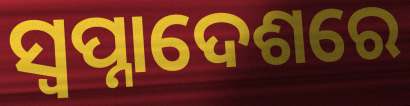
ସ୍ଵପ୍ନାଦେଶରେ